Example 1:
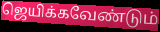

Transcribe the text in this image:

ஜெயிக்கவேண்டும்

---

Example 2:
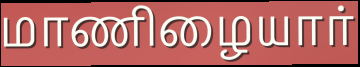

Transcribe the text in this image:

மாணிழையார்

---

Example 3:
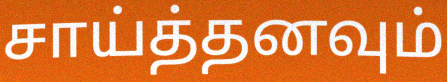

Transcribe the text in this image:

சாய்த்தனவும்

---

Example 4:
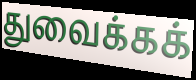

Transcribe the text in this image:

துவைக்கக்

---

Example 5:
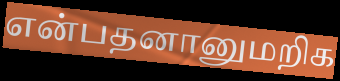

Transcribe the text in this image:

என்பதனானுமறிக